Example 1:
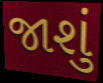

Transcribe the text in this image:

જાશું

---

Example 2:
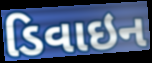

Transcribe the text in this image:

ડિવાઇન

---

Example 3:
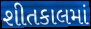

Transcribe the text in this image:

શીતકાલમાં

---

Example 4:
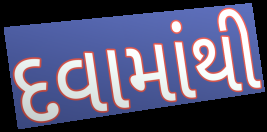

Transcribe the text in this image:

દવામાંથી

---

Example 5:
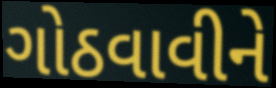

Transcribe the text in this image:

ગોઠવાવીને